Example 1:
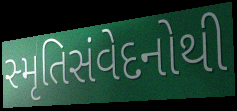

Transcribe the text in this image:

સ્મૃતિસંવેદનોથી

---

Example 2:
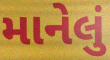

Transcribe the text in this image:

માનેલું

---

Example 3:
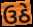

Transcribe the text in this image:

ઉઠે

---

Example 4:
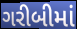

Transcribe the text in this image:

ગરીબીમાં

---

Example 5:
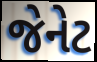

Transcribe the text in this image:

જેનેટ